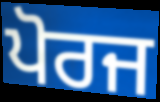
ਪੋਰਜ